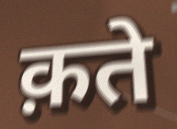
क़ते